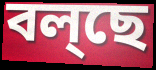
বল্ছে